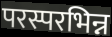
परस्परभिन्न